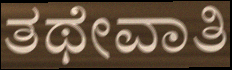
ತಥೇವಾತಿ